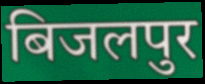
बिजलपुर